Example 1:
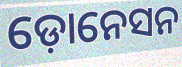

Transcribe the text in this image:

ଡ଼ୋନେସନ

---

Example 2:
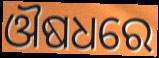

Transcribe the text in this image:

ଔଷଧରେ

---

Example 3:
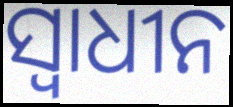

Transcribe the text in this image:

ସ୍ୱାଧୀନ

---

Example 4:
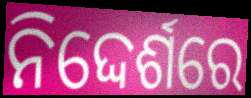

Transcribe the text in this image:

ନିଦ୍ଦେର୍ଶରେ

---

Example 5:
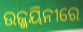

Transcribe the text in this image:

ଉଜ୍ଜୟିନୀରେ